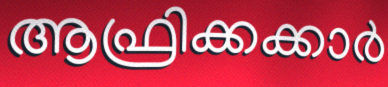
ആഫ്രിക്കക്കാർ